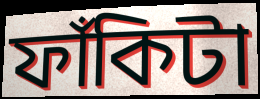
ফাঁকিটা